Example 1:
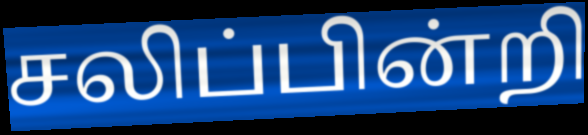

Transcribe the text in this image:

சலிப்பின்றி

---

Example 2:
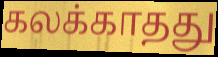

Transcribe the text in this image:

கலக்காதது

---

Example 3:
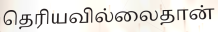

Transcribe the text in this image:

தெரியவில்லைதான்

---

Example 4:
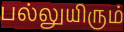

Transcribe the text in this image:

பல்லுயிரும்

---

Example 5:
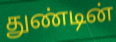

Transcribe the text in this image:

துண்டின்